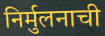
निर्मुलनाची